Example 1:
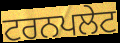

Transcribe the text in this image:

ਟਰਨਪਲੇਟ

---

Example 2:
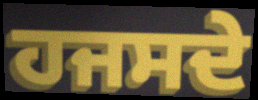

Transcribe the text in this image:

ਹਜਸਦੇ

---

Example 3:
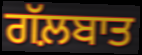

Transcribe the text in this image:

ਗੱਲ਼ਬਾਤ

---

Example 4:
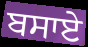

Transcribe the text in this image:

ਬਸਾਏ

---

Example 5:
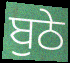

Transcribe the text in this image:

ਬੁਠੇ